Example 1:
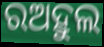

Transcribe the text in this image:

ରଅହୁଲ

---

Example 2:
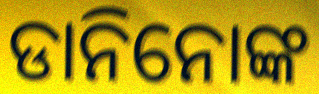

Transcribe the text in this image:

ଡାନିନୋଙ୍କ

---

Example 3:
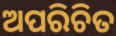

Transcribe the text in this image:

ଅପରିଚିତ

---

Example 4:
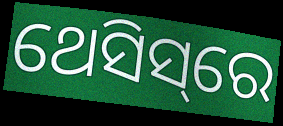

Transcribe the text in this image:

ଥେସିସ୍‌ରେ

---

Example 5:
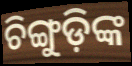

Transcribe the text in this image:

ଚିଙ୍ଗୁଡ଼ିଙ୍କ